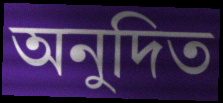
অনুদিত